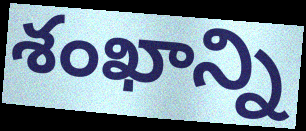
శంఖాన్ని